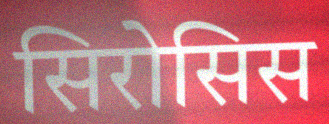
सिरोसिस